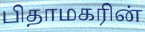
பிதாமகரின்